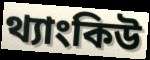
থ্যাংকিউ